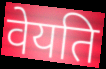
वेयति